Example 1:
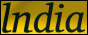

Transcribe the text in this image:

lndia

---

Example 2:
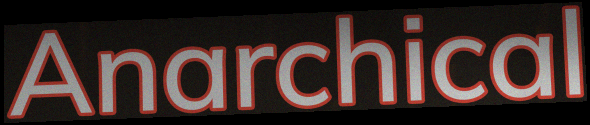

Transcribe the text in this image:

Anarchical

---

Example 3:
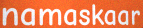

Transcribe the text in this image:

namaskaar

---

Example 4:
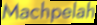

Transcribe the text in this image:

Machpelah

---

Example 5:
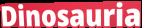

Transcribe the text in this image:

Dinosauria